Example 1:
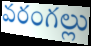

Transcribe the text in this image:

వరంగల్లు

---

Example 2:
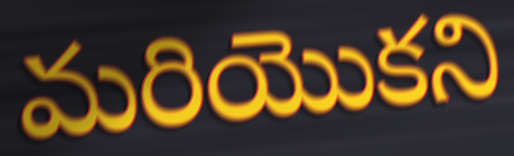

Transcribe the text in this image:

మరియొకని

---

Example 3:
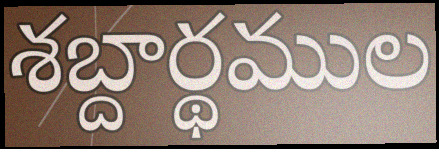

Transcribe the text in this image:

శబ్దార్థముల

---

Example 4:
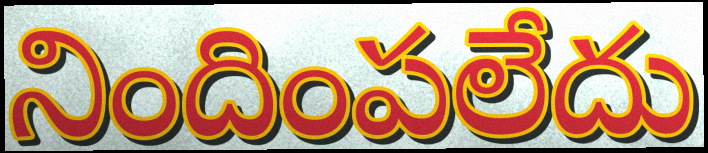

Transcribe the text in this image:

నిందింపలేదు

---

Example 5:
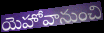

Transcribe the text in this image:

యెహోవానుంచి